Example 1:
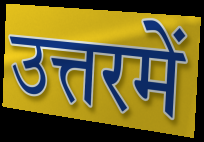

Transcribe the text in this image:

उत्तरमें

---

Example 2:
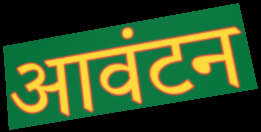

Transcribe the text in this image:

आवंटन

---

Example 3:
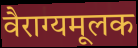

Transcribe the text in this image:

वैराग्यमूलक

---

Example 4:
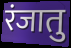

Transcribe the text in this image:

रंजातु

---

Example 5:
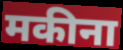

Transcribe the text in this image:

मकीना